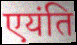
एयंति